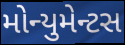
મોન્યુમેન્ટસ